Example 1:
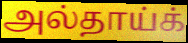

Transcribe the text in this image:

அல்தாய்க்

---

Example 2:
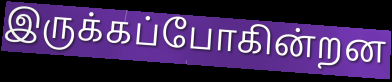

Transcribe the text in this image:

இருக்கப்போகின்றன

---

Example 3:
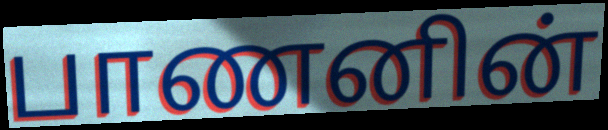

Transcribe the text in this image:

பாணனின்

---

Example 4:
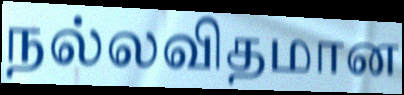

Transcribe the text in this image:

நல்லவிதமான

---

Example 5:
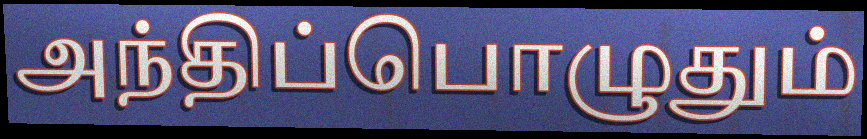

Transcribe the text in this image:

அந்திப்பொழுதும்